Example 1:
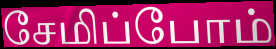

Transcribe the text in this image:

சேமிப்போம்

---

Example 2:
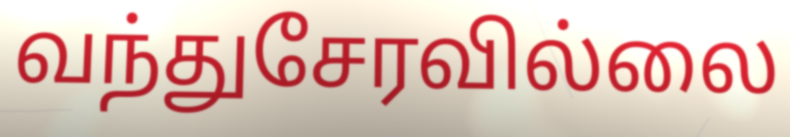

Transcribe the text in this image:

வந்துசேரவில்லை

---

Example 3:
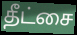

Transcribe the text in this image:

தீட்சை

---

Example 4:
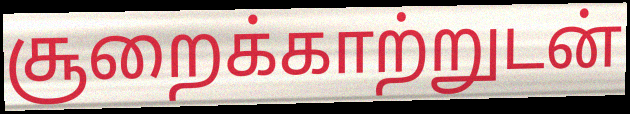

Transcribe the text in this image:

சூறைக்காற்றுடன்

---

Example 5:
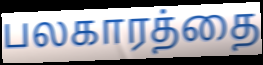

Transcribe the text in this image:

பலகாரத்தை